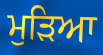
ਮੁੜਿਆ